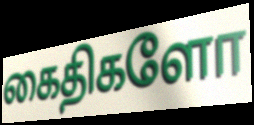
கைதிகளோ